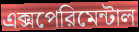
এক্সপেরিমেন্টাল